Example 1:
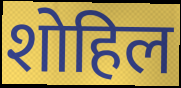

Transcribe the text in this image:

शोहिल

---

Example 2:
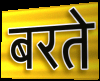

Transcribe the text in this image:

बरते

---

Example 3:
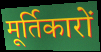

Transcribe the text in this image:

मूर्तिकारों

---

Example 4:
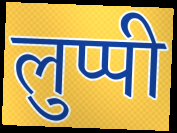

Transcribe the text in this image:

लुप्पी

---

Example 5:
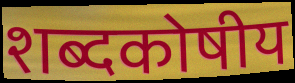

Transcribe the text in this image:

शब्दकोषीय